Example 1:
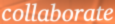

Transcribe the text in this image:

collaborate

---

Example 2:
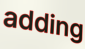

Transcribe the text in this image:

adding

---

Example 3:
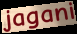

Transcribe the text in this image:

jagani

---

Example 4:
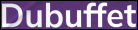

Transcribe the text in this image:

Dubuffet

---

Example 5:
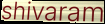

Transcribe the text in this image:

shivaram